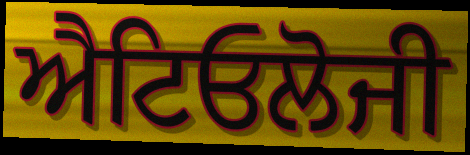
ਐਟਿਓਲੋਜੀ